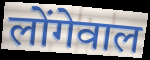
लोंगेवाल